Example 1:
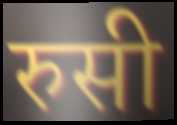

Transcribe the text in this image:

रुसी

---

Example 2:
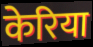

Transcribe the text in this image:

केरिया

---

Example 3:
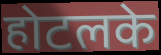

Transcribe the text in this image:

होटलके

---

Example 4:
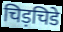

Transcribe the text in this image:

चिड़चिडे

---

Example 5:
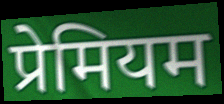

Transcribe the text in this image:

प्रेमियम